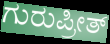
ಗುರುಪ್ರೀತ್